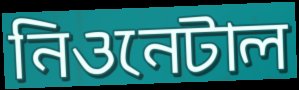
নিওনেটাল